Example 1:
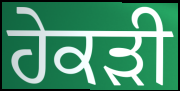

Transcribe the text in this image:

ਹੇਕੜੀ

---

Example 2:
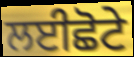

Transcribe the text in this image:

ਲਈਛੋਟੇ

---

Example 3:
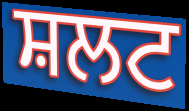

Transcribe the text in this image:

ਸ਼ਲਟ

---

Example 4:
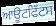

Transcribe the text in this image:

ਆਊਟਫਿੱਟਸ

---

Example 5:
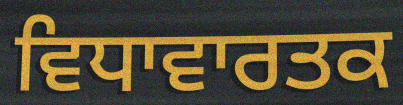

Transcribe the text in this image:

ਵਿਧਾਵਾਰਤਕ